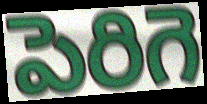
పెరిగె